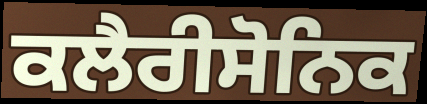
ਕਲੈਰੀਸੋਨਿਕ